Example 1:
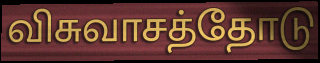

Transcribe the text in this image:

விசுவாசத்தோடு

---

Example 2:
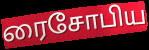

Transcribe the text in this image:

ரைசோபிய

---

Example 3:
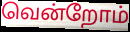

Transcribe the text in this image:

வென்றோம்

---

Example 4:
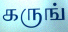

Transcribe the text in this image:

கருங்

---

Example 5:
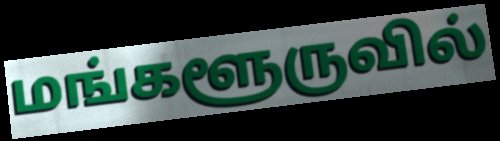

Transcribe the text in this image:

மங்களூருவில்